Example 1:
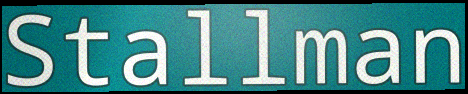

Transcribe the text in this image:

Stallman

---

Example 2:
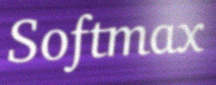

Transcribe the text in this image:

Softmax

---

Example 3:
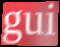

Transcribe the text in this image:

gui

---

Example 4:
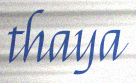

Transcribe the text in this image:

thaya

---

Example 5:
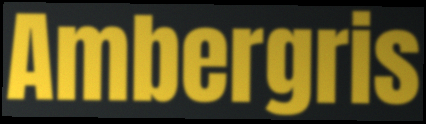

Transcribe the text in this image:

Ambergris